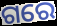
ଗରେ